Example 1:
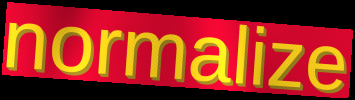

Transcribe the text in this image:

normalize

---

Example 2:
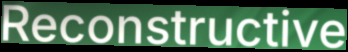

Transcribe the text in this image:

Reconstructive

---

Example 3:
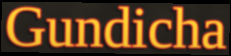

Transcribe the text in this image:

Gundicha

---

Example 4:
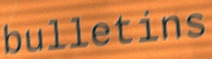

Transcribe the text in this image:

bulletins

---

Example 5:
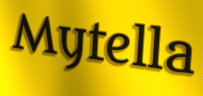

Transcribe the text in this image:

Mytella